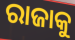
ରାଜାକୁ